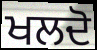
ਖਲਦੋ